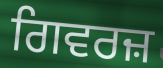
ਗਿਵਰਜ਼